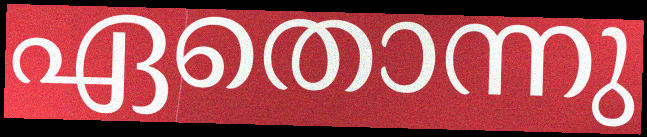
ഏതൊന്നു